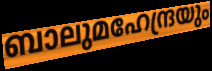
ബാലുമഹേന്ദ്രയും